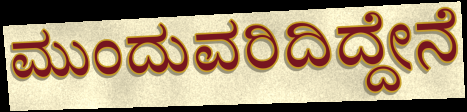
ಮುಂದುವರಿದಿದ್ದೇನೆ